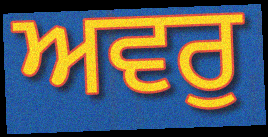
ਅਵਰੁ